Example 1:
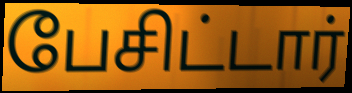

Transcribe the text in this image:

பேசிட்டார்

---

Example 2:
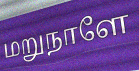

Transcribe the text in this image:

மறுநாளே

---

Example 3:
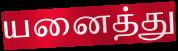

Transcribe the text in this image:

யனைத்து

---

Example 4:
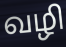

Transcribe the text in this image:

வழி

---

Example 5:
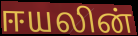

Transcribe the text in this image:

ஈயலின்